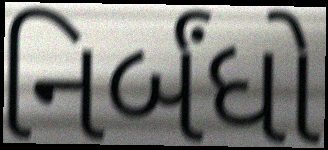
નિર્બંધો